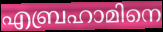
എബ്രഹാമിനെ